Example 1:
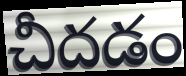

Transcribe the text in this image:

చీదడం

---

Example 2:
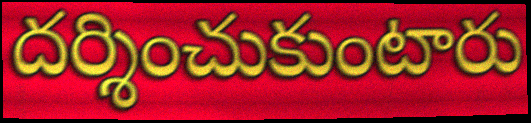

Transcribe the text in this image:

దర్శించుకుంటారు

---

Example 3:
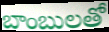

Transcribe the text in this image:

బాంబులతో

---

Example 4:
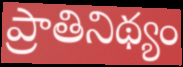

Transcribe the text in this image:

ప్రాతినిథ్యం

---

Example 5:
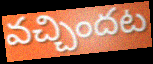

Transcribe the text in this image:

వచ్చిందట